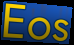
Eos